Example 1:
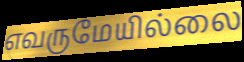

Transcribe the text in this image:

எவருமேயில்லை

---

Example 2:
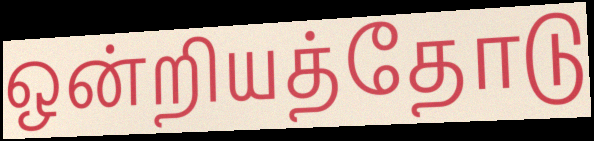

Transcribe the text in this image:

ஒன்றியத்தோடு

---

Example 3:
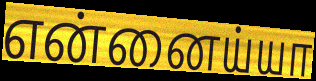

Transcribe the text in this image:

என்னைய்யா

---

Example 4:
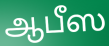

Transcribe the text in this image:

ஆபீஸ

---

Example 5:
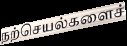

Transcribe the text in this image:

நற்செயல்களைச்